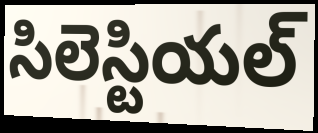
సిలెస్టియల్